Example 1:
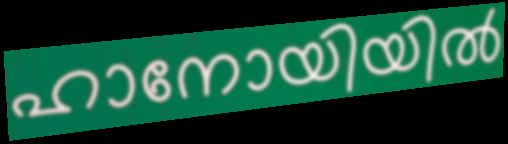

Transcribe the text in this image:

ഹാനോയിയിൽ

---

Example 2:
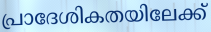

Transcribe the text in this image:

പ്രാദേശികതയിലേക്ക്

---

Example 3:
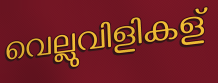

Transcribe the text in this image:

വെല്ലുവിളികള്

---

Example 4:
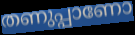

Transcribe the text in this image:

തണുപ്പാണോ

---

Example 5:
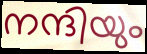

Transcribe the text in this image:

നന്ദിയും